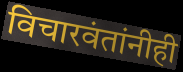
विचारवंतांनीही